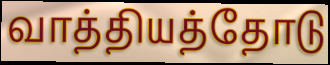
வாத்தியத்தோடு